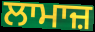
ਲਾਮਾਜ਼